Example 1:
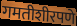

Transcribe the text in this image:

गमतीशीरपणे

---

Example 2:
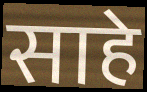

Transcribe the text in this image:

साहे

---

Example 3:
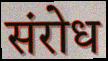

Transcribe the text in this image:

संरोध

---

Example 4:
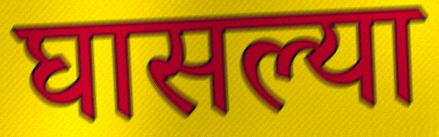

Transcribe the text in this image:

घासल्या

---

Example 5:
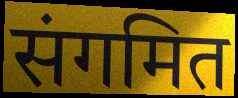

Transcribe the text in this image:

संगमित